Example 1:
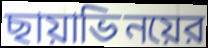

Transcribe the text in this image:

ছায়াভিনয়ের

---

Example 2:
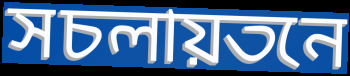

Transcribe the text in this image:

সচলায়তনে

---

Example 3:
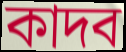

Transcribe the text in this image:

কাদব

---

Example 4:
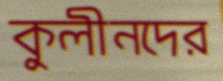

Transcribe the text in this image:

কুলীনদের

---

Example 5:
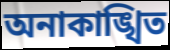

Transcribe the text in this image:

অনাকাঙ্খিত